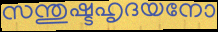
സന്തുഷ്ടഹൃദയനോ